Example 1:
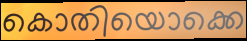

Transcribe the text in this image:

കൊതിയൊക്കെ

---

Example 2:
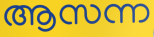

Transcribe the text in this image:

ആസന്ന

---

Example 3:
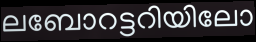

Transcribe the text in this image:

ലബോറട്ടറിയിലോ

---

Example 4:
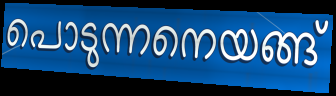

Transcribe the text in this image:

പൊടുന്നനെയങ്ങ്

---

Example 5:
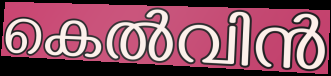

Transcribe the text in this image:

കെൽവിൻ